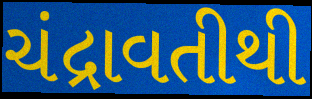
ચંદ્રાવતીથી